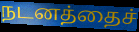
நடனத்தைச்